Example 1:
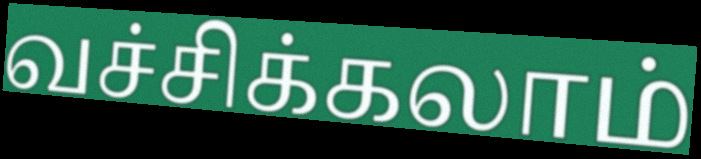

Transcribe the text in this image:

வச்சிக்கலாம்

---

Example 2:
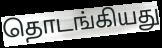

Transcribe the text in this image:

தொடங்கியது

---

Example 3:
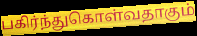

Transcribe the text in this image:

பகிர்ந்துகொள்வதாகும்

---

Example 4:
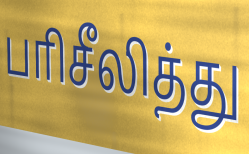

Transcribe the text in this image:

பரிசீலித்து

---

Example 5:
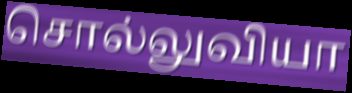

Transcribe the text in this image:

சொல்லுவியா